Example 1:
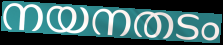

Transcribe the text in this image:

നയനതടം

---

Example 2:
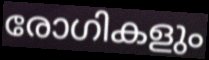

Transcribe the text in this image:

രോഗികളും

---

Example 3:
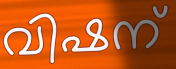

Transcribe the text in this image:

വിഷന്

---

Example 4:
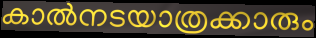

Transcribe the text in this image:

കാൽനടയാത്രക്കാരും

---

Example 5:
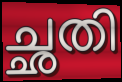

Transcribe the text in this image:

ച്ഛതി